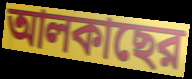
আলকাছের